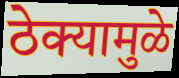
ठेक्यामुळे